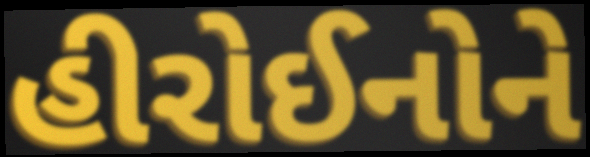
હીરોઈનોને